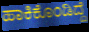
ಹಾಕಿಕೊಂಡಿದ್ದೆ